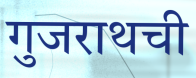
गुजराथची